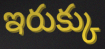
ఇరుక్కు